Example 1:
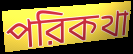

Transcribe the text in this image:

পরিকথা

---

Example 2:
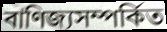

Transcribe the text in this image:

বাণিজ্যসম্পর্কিত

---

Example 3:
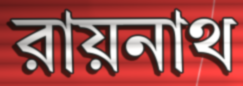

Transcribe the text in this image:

রায়নাথ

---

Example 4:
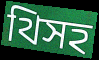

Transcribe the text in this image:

থিসহ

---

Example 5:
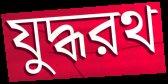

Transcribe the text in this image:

যুদ্ধরথ